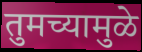
तुमच्यामुळे